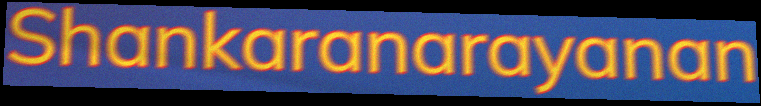
Shankaranarayanan